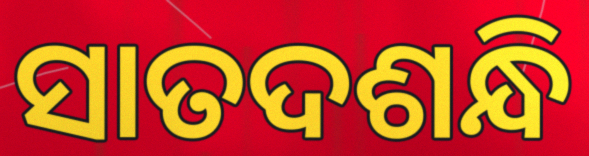
ସାତଦଶନ୍ଧି